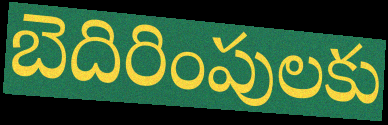
బెదిరింపులకు